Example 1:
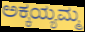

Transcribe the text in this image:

ಅಕ್ಕಯ್ಯಮ್ಮ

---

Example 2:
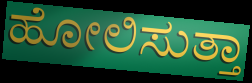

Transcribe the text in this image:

ಹೋಲಿಸುತ್ತಾ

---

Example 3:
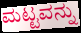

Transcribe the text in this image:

ಮಟ್ಟವನ್ನು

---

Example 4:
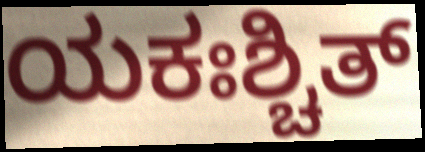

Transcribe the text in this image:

ಯಕಃಶ್ಚಿತ್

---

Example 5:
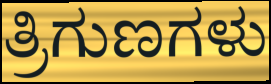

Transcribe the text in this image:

ತ್ರಿಗುಣಗಳು